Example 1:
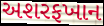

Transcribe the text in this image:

અશરફખાન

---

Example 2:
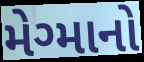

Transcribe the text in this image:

મેગ્માનો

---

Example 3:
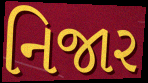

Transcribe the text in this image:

નિજાર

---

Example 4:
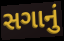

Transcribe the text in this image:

સગાનું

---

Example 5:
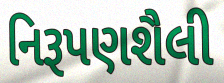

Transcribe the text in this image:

નિરૂપણશૈલી